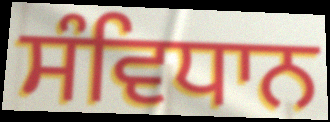
ਸੰਵਿਧਾਨ